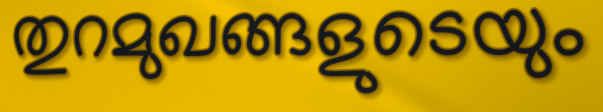
തുറമുഖങ്ങളുടെയും